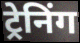
ट्रेनिंग